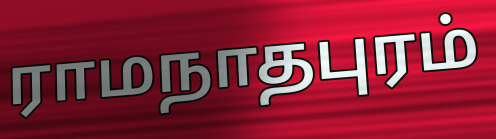
ராமநாதபுரம்